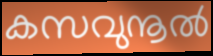
കസവുനൂൽ